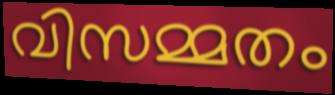
വിസമ്മതം